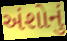
અંશોનું